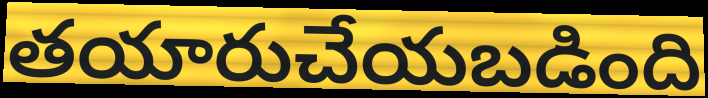
తయారుచేయబడింది